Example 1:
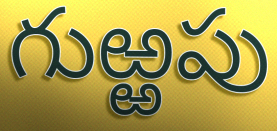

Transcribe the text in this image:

గుఱ్ఱపు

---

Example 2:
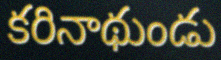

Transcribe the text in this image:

కరినాథుండు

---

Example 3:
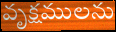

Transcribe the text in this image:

వృక్షములను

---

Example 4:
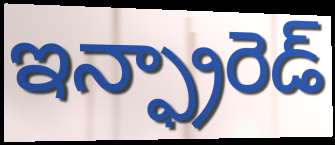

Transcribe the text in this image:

ఇన్ఫ్రారెడ్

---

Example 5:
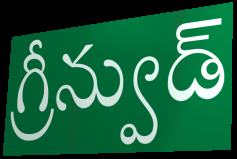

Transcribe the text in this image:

గ్రీన్వుడ్